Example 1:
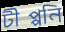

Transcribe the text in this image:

টীপ্পনি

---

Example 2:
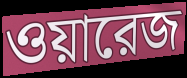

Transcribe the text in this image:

ওয়ারেজ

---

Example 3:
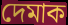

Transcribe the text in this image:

দেমাক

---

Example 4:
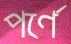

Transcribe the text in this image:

পর্ণে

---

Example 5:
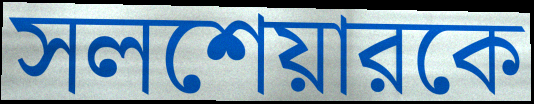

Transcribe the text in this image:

সলশেয়ারকে